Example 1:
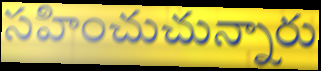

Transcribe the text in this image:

సహించుచున్నారు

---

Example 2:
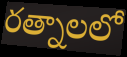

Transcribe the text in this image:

రత్నాలలో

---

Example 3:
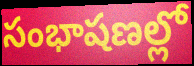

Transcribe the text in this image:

సంభాషణల్లో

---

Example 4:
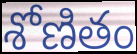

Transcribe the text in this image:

శోణితం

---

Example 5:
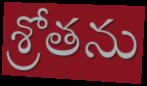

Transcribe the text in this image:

శ్రోతను